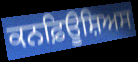
ਕਨਫ਼ਿਊਸ਼ਿਅਸ